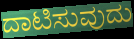
ದಾಟಿಸುವುದು